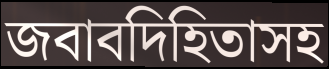
জবাবদিহিতাসহ